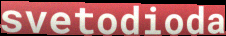
svetodioda